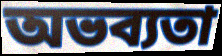
অভব্যতা